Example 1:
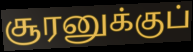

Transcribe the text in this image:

சூரனுக்குப்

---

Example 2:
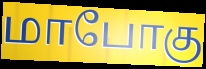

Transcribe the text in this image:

மாபோகு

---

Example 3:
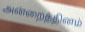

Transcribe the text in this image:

அன்றைத்தினம்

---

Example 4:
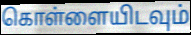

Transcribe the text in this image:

கொள்ளையிடவும்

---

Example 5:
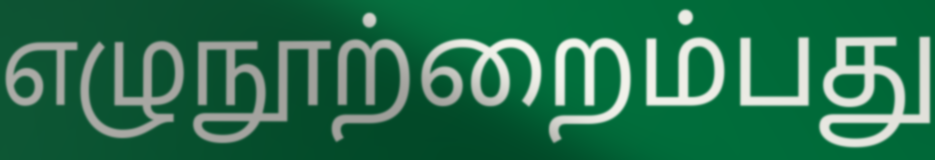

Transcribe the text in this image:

எழுநூற்றைம்பது